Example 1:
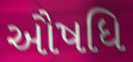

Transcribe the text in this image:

ઔષધિ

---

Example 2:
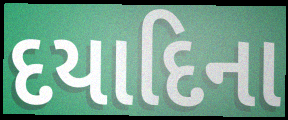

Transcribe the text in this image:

દયાદિના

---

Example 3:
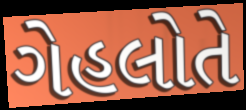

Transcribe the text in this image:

ગેહલોતે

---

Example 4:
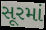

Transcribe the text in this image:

સૂરમાં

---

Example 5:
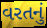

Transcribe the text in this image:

વરતનું